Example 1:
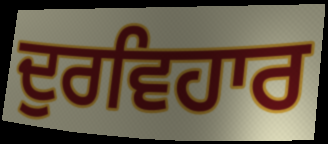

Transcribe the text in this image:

ਦੁਰਵਿਹਾਰ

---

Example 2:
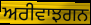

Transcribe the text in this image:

ਅਰੀਵਾਝਗਨ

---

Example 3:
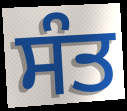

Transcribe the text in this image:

ਸੰਤ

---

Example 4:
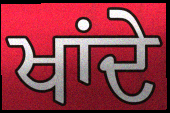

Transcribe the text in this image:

ਖਾਂਦੇ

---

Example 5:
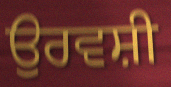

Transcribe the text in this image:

ਉਰਵਸ਼ੀ